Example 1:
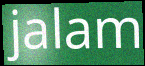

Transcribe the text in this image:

jalam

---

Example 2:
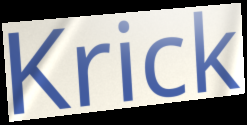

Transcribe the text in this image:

Krick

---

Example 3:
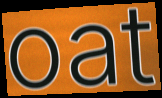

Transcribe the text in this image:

oat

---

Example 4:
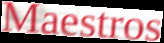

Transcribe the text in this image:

Maestros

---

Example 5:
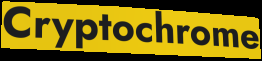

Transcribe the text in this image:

Cryptochrome